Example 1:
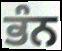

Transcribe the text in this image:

ਭੰਨ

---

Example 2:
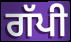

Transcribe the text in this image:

ਗੱਪੀ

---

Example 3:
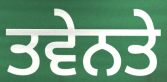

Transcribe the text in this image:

ਤਵੇਨਤੇ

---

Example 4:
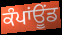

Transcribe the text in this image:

ਕੰਪਾਂਊਂਡ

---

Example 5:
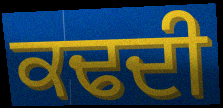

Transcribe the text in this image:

ਕਢਦੀ